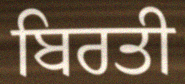
ਬਿਰਤੀ